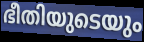
ഭീതിയുടെയും